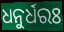
ଧନୁର୍ଧରଃ